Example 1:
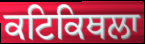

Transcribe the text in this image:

ਕਟਿਕਿਥਲਾ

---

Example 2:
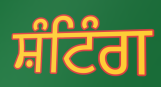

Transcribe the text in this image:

ਸ਼ੰਟਿੰਗ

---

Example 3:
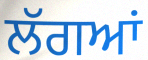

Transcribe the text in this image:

ਲੱਗਆਂ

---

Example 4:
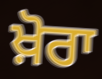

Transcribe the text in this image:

ਖ਼ੋਰਾ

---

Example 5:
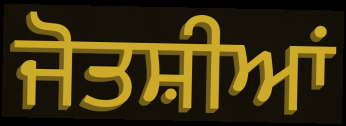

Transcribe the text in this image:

ਜੋਤਸ਼ੀਆਂ